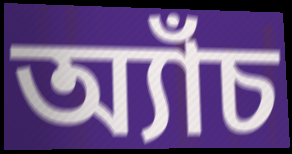
অ্যাঁচ